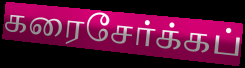
கரைசேர்க்கப்